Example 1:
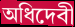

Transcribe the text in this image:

অধিদেবী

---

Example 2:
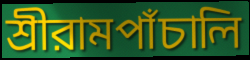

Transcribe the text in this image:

শ্রীরামপাঁচালি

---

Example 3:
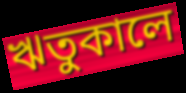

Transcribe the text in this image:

ঋতুকালে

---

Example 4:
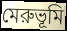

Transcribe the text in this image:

মেরুভূমি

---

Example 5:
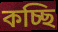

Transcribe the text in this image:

কচ্ছি